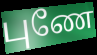
புணே